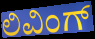
ಲಿವಿಂಗ್